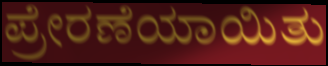
ಪ್ರೇರಣೆಯಾಯಿತು